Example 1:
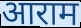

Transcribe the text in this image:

आराम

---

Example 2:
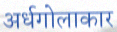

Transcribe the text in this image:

अर्धगोलाकार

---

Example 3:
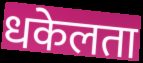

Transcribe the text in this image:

धकेलता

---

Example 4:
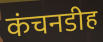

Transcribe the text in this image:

कंचनडीह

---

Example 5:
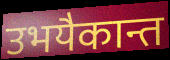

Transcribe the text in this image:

उभयैकान्त